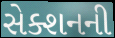
સેક્શનની